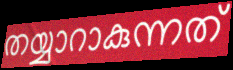
തയ്യാറാകുന്നത്